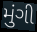
મુંગી